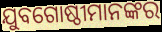
ଯୁବଗୋଷ୍ଠୀମାନଙ୍କର